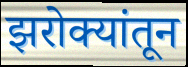
झरोक्यांतून